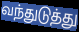
வந்துடுத்து